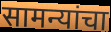
सामन्यांचा